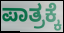
ಪಾತ್ರಕ್ಕೆ